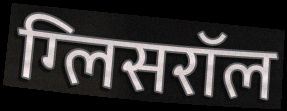
ग्लिसरॉल